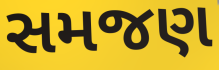
સમજણ